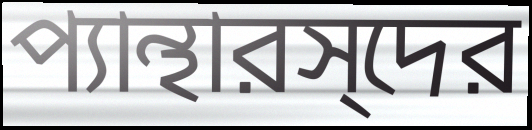
প্যান্থারস্‌দের